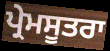
ਪ੍ਰੇਮਸੂਤਰਾ